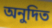
অনুদিত